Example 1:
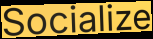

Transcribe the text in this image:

Socialize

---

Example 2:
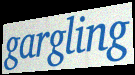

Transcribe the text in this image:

gargling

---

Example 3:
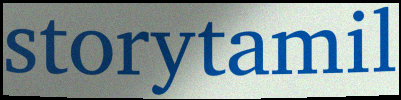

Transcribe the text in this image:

storytamil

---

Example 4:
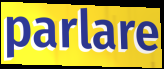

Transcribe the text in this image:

parlare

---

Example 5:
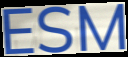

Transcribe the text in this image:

ESM